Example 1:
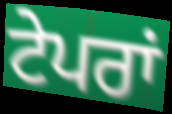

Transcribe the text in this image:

ਟੇਪਰਾਂ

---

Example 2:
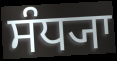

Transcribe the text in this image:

ਸੰਧ੍ਯਾ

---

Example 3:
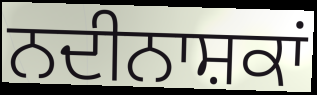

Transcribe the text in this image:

ਨਦੀਨਾਸ਼ਕਾਂ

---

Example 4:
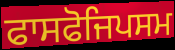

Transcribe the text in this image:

ਫਾਸਫੋਜਿਪਸਮ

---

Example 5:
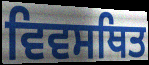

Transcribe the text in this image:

ਵਿਵਸਥਿਤ